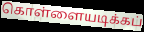
கொள்ளையடிக்கப்